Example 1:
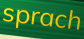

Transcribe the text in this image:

sprach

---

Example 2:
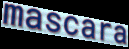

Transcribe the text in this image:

mascara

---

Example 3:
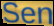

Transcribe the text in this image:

Sen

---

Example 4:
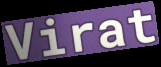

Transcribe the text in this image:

Virat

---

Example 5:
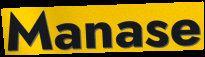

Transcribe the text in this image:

Manase